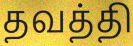
தவத்தி